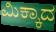
ಮಿಕ್ಕಾದ